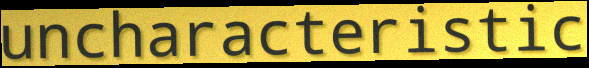
uncharacteristic